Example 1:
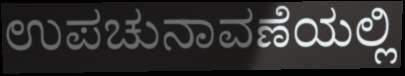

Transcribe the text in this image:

ಉಪಚುನಾವಣೆಯಲ್ಲಿ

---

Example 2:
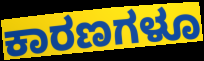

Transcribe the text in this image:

ಕಾರಣಗಳೂ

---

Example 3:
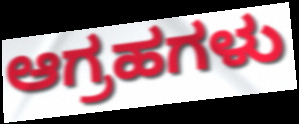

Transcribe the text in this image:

ಆಗ್ರಹಗಳು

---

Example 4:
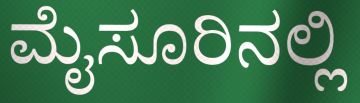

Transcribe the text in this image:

ಮೈಸೂರಿನಲ್ಲಿ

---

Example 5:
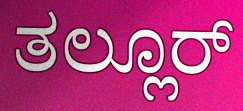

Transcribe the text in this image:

ತಲ್ಲೂರ್